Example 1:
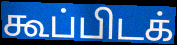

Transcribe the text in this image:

கூப்பிடக்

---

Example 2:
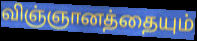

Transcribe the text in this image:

விஞ்ஞானத்தையும்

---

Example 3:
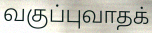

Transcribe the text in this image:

வகுப்புவாதக்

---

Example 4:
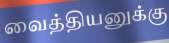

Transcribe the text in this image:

வைத்தியனுக்கு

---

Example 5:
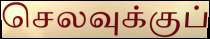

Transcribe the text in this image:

செலவுக்குப்